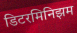
डिटरमिनिझम